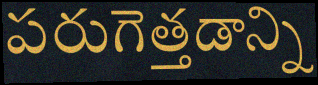
పరుగెత్తడాన్ని